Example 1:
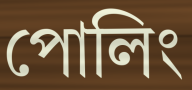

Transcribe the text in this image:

পোলিং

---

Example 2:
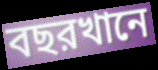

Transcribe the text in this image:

বছরখানে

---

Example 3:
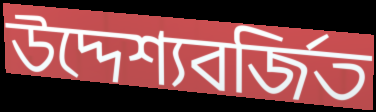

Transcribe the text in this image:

উদ্দেশ্যবর্জিত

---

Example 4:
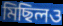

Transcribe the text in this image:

মিছিলও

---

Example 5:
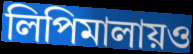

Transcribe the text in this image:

লিপিমালায়ও